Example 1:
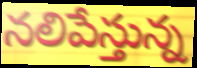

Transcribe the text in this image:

నలిపేస్తున్న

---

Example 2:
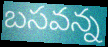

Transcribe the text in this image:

బసవన్న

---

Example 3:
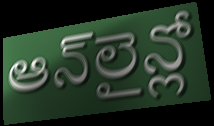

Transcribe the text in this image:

ఆన్‌లైన్లో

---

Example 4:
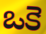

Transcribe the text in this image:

ఒకె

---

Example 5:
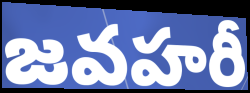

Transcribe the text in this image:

జవహరీ